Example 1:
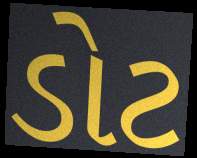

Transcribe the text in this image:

ડોટ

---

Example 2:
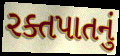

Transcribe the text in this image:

રક્તપાતનું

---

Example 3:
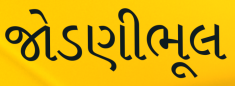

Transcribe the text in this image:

જોડણીભૂલ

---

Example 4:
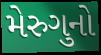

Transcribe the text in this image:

મેરુગુનો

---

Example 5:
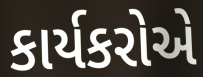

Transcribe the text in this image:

કાર્યકરોએ